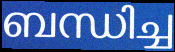
ബന്ധിച്ച